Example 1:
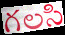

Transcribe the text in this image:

గలసి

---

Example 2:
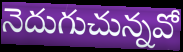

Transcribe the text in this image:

నెదుగుచున్నవో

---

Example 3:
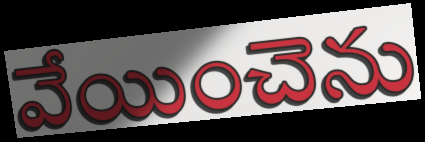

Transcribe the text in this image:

వేయించెను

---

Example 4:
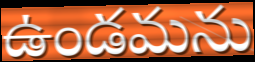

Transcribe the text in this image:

ఉండమను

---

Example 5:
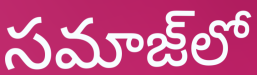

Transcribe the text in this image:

సమాజ్‌లో